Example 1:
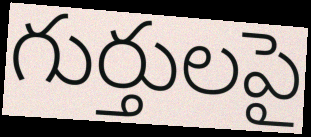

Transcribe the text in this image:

గుర్తులపై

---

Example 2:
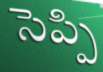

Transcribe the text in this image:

సెప్పి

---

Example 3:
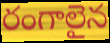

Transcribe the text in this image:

రంగాలైన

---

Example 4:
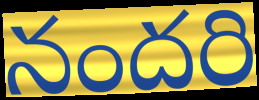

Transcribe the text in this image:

నందరి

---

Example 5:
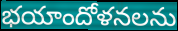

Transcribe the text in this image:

భయాందోళనలను